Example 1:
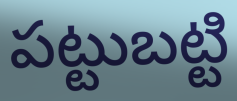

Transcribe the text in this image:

పట్టుబట్టి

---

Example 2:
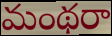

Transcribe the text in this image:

మంథరా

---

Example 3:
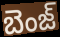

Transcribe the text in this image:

బెంజ్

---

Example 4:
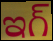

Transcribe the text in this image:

ఇగ్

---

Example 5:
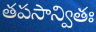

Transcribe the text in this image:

తపసాన్వితః